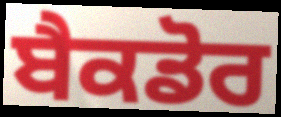
ਬੈਕਡੋਰ